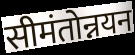
सीमंतोन्नयन